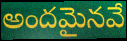
అందమైనవే